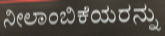
ನೀಲಾಂಬಿಕೆಯರನ್ನು